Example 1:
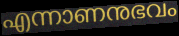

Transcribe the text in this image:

എന്നാണനുഭവം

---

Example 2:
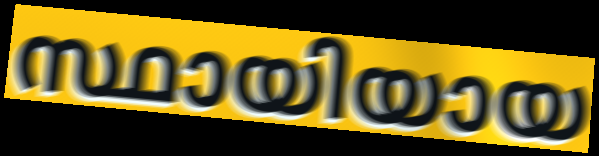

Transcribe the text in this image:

സ്ഥായിയായ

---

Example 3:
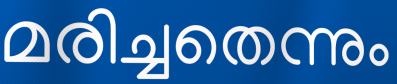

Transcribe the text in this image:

മരിച്ചതെന്നും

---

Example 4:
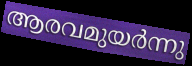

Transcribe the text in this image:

ആരവമുയർന്നു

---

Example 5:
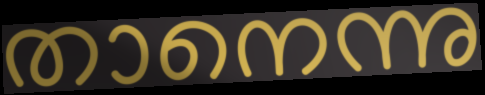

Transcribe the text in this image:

താനെന്നു